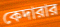
কেদারার